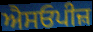
ਐਸਓਪੀਜ਼